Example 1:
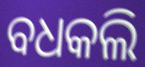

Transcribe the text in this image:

ବଧକଲି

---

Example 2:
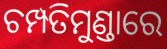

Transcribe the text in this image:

ଚମ୍ପତିମୁଣ୍ଡାରେ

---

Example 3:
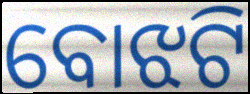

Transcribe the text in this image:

ବୋଝଟି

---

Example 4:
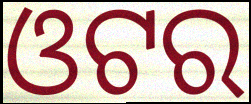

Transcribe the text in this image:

ଓଟର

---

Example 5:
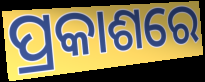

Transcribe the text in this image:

ପ୍ରକାଶରେ